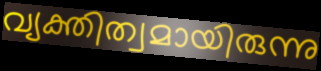
വ്യക്തിത്വമായിരുന്നു